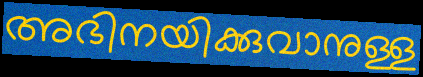
അഭിനയിക്കുവാനുള്ള